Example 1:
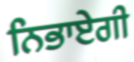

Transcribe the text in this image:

ਨਿਭਾਏਗੀ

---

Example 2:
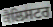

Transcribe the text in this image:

ਕੈਲਿਸਟਰ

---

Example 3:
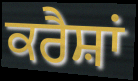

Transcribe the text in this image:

ਕਰੈਸ਼ਾਂ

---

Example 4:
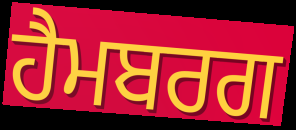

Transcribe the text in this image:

ਹੈਮਬਰਗ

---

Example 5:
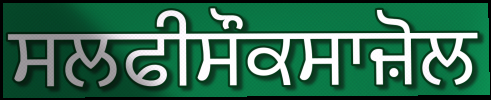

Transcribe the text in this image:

ਸਲਫੀਸੌਕਸਾਜ਼ੋਲ